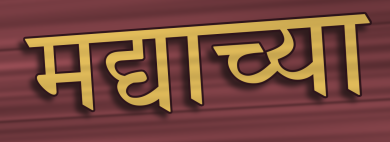
मद्याच्या